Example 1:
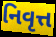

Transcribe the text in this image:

નિવૃત્ત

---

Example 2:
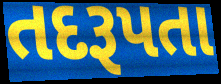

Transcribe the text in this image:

તદરૂપતા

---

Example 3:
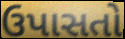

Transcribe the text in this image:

ઉપાસતો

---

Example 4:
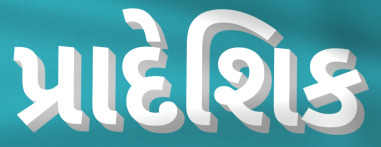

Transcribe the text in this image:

પ્રાદેશિક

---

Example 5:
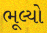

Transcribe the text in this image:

ભૂલ્યો